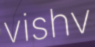
vishv